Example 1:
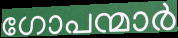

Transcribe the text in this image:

ഗോപന്മാർ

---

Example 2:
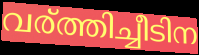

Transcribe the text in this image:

വര്ത്തിച്ചീടിന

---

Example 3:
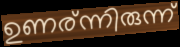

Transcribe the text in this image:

ഉണര്ന്നിരുന്ന്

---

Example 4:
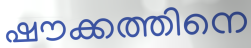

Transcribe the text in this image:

ഷൗക്കത്തിനെ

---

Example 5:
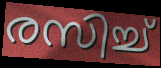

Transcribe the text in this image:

രസിച്ച്